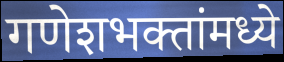
गणेशभक्तांमध्ये